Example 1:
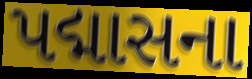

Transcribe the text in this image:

પદ્માસના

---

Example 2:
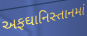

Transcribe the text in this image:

અફઘાનિસ્તાનમાં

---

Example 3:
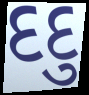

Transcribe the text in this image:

દદુ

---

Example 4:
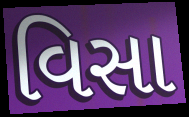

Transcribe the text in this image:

વિસા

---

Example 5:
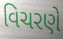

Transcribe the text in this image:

વિચરણે